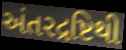
અંતરદ્રષ્ટિથી